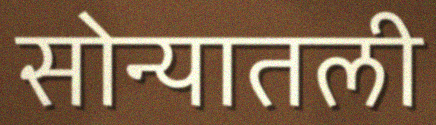
सोन्यातली